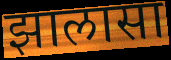
झालासा